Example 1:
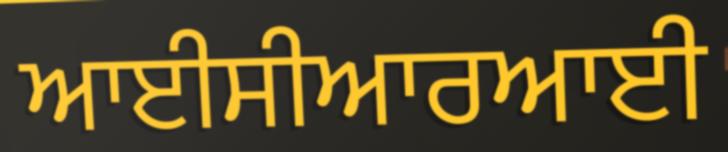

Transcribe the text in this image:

ਆਈਸੀਆਰਆਈ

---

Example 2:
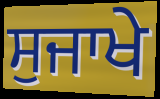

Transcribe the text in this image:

ਸੁਜਾਖੇ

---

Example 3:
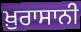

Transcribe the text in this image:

ਖ਼ੁਰਾਸਾਨੀ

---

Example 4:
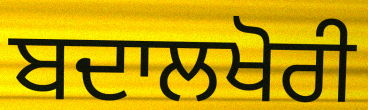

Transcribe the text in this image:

ਬਦਾਲਖੋਰੀ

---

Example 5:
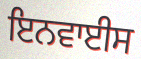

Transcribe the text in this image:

ਇਨਵਾਈਸ